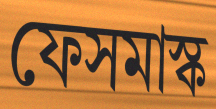
ফেসমাস্ক